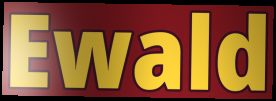
Ewald